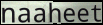
naaheet